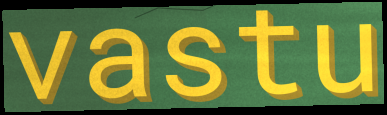
vastu